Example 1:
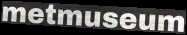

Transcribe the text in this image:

metmuseum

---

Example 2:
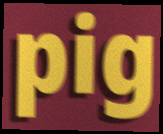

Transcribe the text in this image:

pig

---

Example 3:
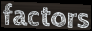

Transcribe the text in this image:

factors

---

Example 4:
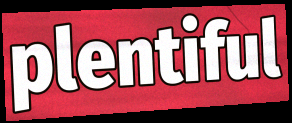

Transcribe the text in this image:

plentiful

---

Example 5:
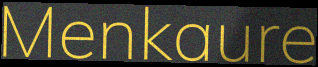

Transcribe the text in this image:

Menkaure